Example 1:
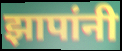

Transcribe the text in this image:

झापांनी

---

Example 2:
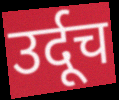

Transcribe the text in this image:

उर्दूच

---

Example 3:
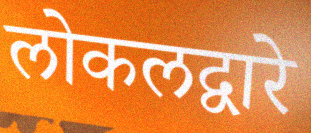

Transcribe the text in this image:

लोकलद्वारे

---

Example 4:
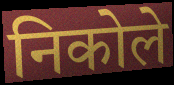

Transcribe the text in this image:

निकोले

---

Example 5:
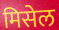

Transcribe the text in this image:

मिसेल